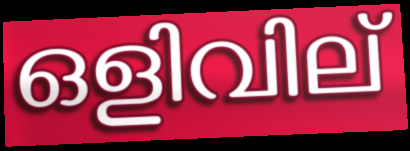
ഒളിവില്